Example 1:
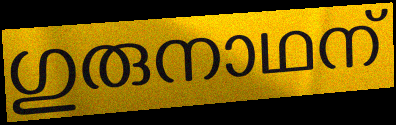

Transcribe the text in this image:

ഗുരുനാഥന്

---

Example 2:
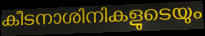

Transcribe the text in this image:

കീടനാശിനികളുടെയും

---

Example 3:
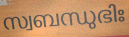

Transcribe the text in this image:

സ്വബന്ധുഭിഃ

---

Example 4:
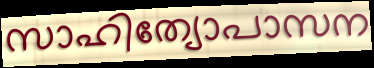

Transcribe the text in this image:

സാഹിത്യോപാസന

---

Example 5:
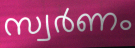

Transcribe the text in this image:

സ്വർണം